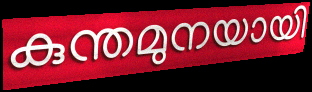
കുന്തമുനയായി